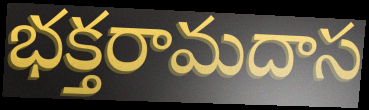
భక్తరామదాస